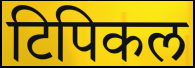
टिपिकल